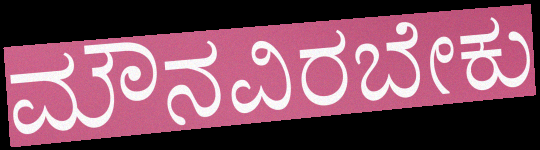
ಮೌನವಿರಬೇಕು